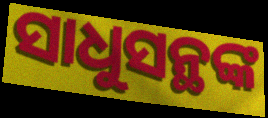
ସାଧୁସନ୍ଥଙ୍କ